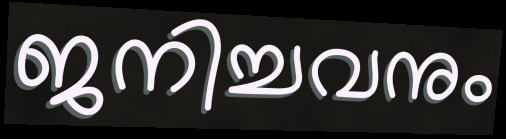
ജനിച്ചവനും